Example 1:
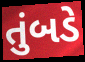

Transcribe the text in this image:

તુંબડે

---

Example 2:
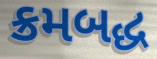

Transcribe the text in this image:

ક્રમબદ્ધ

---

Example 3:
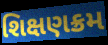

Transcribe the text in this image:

શિક્ષણક્રમ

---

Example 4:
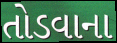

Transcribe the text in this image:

તોડવાના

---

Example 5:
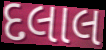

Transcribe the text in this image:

દલાલ